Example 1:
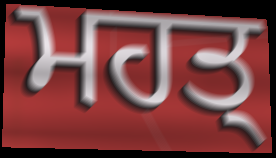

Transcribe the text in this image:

ਮਹਤ੍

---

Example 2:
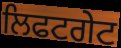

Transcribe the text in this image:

ਲਿਫਟਗੇਟ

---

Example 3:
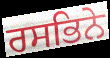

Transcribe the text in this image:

ਰਸਭਿਨੇ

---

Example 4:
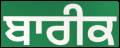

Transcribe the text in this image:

ਬਾਰੀਕ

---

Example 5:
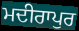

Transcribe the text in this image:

ਮਦੀਰਾਪੁਰ